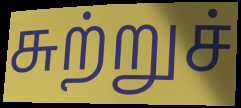
சுற்றுச்